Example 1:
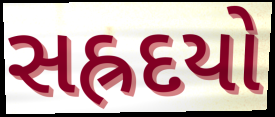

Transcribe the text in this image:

સહ્રદયો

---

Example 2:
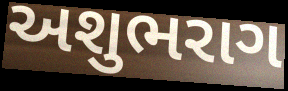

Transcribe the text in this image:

અશુભરાગ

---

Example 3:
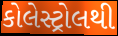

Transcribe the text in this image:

કોલેસ્ટ્રોલથી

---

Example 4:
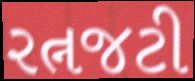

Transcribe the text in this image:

રત્નજટી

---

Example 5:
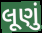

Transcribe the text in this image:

લૂણું